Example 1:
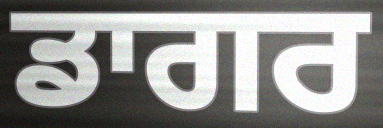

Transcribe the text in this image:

ਡਾਗਰ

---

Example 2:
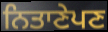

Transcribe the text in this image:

ਨਿਤਾਣੇਪਣ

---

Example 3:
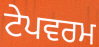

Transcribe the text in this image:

ਟੇਪਵਰਮ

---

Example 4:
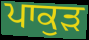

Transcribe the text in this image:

ਪਾਕੁੜ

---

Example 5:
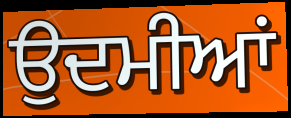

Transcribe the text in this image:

ਉਦਮੀਆਂ